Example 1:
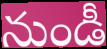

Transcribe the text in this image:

నుండీ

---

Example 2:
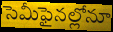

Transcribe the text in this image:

సెమీఫైనల్లోనూ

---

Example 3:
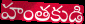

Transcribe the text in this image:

హంతకుడి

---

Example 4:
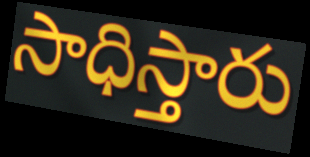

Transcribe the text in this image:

సాధిస్తారు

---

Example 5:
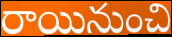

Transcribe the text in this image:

రాయినుంచి